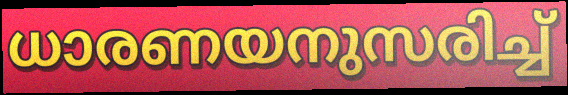
ധാരണയനുസരിച്ച്